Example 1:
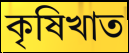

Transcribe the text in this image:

কৃষিখাত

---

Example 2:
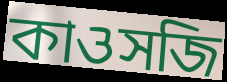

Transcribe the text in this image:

কাওসজি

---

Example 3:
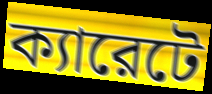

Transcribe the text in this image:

ক্যারেটে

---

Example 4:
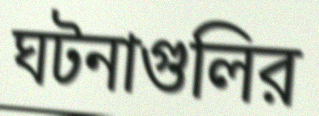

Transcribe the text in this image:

ঘটনাগুলির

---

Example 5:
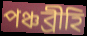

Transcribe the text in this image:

পঞ্চব্রীহি